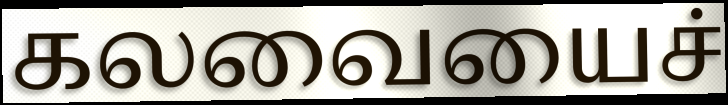
கலவையைச்